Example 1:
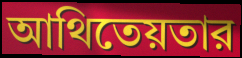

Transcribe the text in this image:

আথিতেয়তার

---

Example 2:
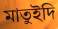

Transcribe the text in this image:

মাতুইদি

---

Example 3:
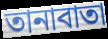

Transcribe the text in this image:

তানাবাতা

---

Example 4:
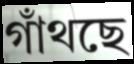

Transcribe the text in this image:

গাঁথছে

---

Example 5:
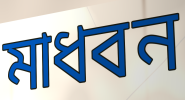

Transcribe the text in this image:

মাধবন